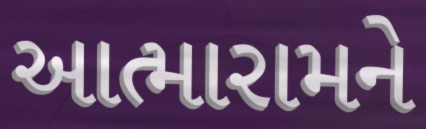
આત્મારામને